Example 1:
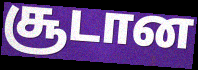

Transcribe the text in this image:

சூடான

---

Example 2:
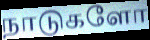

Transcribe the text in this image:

நாடுகளோ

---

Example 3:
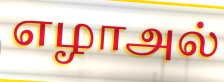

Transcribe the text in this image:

எழாஅல்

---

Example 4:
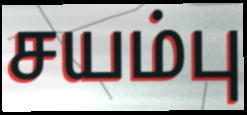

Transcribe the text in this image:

சயம்பு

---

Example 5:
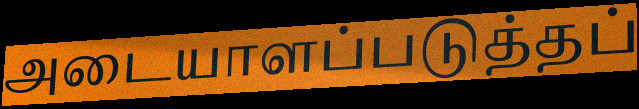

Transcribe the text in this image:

அடையாளப்படுத்தப்